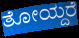
ತೋಯ್ದರೆ